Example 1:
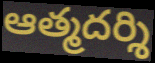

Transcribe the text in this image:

ఆత్మదర్శి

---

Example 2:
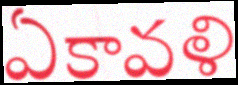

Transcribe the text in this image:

ఏకావళి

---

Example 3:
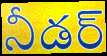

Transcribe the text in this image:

నీడర్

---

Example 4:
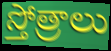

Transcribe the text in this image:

స్తోత్రాలు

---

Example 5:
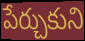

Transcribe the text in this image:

పేర్చుకుని